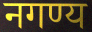
नगण्य